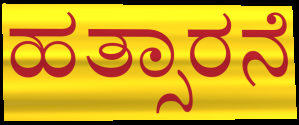
ಹತ್ಸಾರನೆ